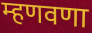
म्हणवणा